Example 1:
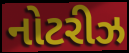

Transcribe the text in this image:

નોટરીઝ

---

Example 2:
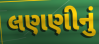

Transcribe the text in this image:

લણણીનું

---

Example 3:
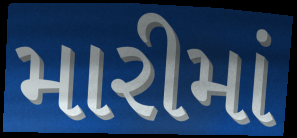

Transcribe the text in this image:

મારીમાં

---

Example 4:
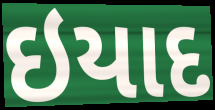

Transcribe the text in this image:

ઇયાદ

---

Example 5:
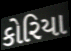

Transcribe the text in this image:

કોરિયા